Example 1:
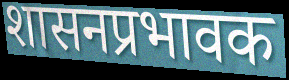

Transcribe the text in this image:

शासनप्रभावक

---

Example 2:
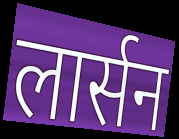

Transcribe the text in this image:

लार्सन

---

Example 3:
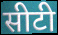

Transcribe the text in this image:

सीटी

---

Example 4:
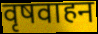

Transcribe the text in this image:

वृषवाहन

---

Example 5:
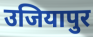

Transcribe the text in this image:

उजियापुर